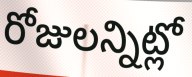
రోజులన్నిట్లో